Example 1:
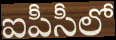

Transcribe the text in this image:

ఐపీసీలో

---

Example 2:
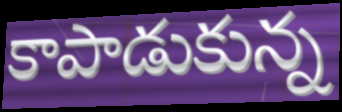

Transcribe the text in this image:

కాపాడుకున్న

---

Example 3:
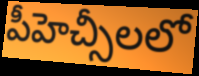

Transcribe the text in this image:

పీహెచ్సీలలో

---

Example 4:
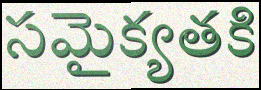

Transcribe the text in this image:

సమైక్యతకి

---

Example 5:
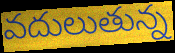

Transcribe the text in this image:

వదులుతున్న